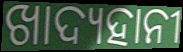
ଖାଦ୍ୟହାନୀ